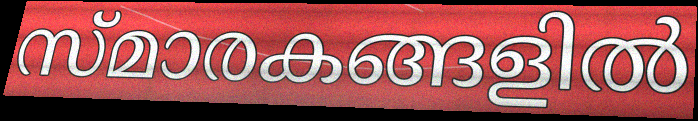
സ്മാരകങ്ങളിൽ